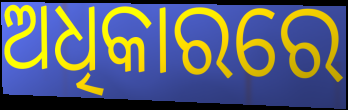
ଅଧିକାରରେ